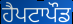
ਹੈਪਟਾਪੌਡ